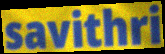
savithri